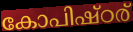
കോപിഷ്ഠര്